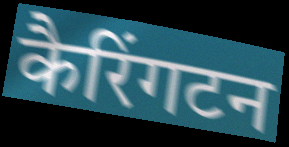
कैरिंगटन